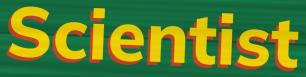
Scientist